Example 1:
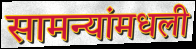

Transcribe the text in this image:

सामन्यांमधली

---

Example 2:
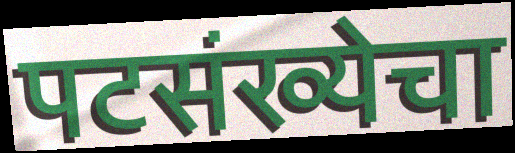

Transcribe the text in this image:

पटसंख्येचा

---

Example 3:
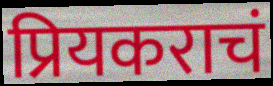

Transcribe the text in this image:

प्रियकराचं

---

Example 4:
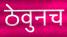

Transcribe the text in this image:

ठेवुनच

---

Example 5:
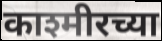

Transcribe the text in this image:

काश्मीरच्या